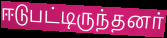
ஈடுபட்டிருந்தனர்